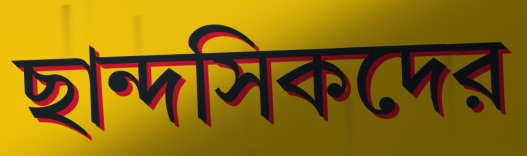
ছান্দসিকদের